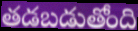
తడబడుతోంది